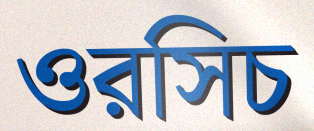
ওরসিচ